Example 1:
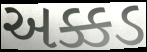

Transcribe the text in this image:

અક્કડ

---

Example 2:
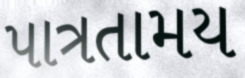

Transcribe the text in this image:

પાત્રતામય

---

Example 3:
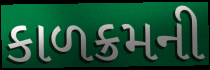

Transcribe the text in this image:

કાળક્રમની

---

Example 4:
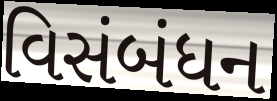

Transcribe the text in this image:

વિસંબંધન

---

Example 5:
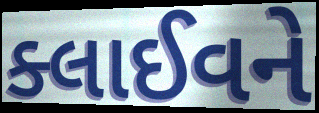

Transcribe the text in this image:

ક્લાઈવને